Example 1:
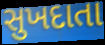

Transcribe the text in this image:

સુખદાતા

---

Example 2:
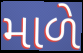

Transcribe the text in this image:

માળે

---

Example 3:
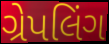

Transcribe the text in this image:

ગ્રેપલિંગ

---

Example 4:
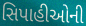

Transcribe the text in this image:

સિપાહીઓની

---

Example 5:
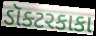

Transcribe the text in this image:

ડૉક્ટરકાકા